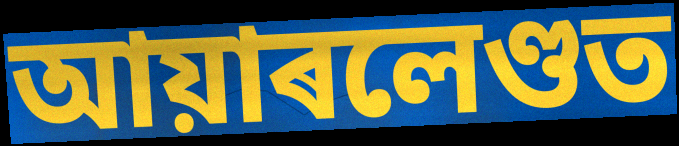
আয়াৰলেণ্ডত